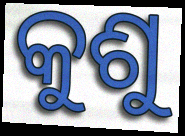
କୁଶୁ